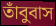
তাঁবুবাস